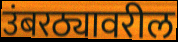
उंबरठ्यावरील